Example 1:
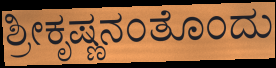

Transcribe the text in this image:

ಶ್ರೀಕೃಷ್ಣನಂತೊಂದು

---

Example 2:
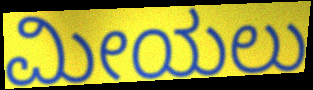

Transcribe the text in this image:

ಮೀಯಲು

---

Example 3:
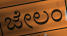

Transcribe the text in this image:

ಜೇಲಂ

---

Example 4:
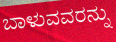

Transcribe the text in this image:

ಬಾಳುವವರನ್ನು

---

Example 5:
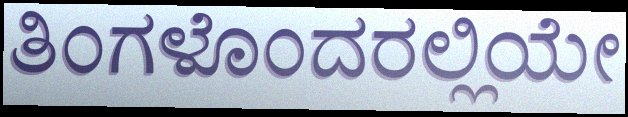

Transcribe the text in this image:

ತಿಂಗಳೊಂದರಲ್ಲಿಯೇ